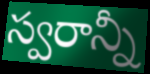
స్వరాన్నీ